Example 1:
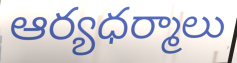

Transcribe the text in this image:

ఆర్యధర్మాలు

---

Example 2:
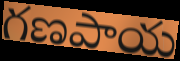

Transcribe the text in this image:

గణపాయ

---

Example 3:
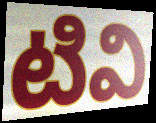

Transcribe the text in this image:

టివి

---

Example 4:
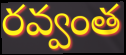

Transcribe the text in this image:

రవ్వంత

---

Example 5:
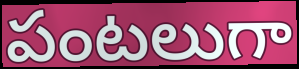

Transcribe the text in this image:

పంటలుగా